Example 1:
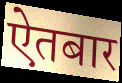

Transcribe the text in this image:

ऐतबार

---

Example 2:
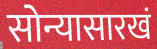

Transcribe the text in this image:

सोन्यासारखं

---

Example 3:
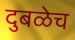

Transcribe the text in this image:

दुबळेच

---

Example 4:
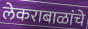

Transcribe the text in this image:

लेकराबाळांचे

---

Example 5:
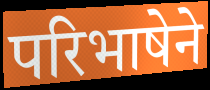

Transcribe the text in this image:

परिभाषेने